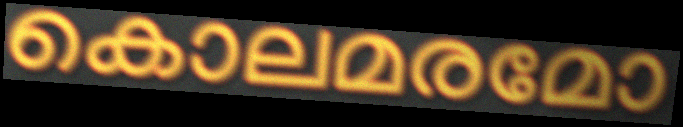
കൊലമരമോ